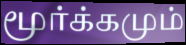
மூர்க்கமும்